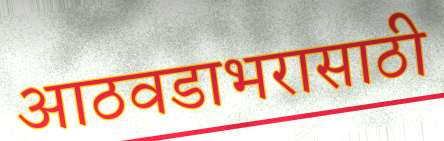
आठवडाभरासाठी